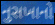
નુસખાનો